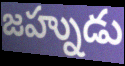
జహ్నుడు